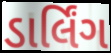
ડાર્લિંગ